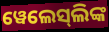
ୱେଲେସ୍‌ଲିଙ୍କ